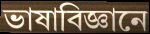
ভাষাবিজ্ঞানে